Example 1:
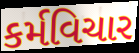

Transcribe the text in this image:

કર્મવિચાર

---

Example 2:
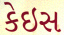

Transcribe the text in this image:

કેઇસ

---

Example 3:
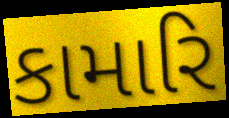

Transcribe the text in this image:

કામારિ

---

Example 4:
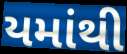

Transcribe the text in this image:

યમાંથી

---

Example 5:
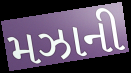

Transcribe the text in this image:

મઝાની